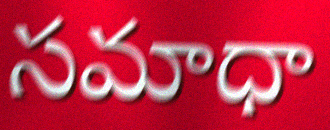
సమాధా